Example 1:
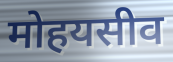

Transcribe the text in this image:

मोहयसीव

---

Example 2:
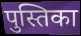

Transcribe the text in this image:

पुस्तिका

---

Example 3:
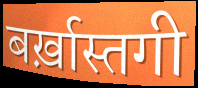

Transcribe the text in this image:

बर्ख़ास्तगी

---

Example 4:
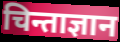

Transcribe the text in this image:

चिन्ताज्ञान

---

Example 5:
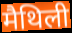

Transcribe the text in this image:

मैथिली